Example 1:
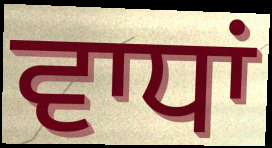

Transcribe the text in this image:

ਵਾਧਾਂ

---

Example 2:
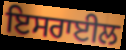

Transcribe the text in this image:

ਇਸਰਾਈਲ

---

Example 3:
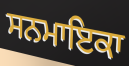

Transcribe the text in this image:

ਸਨਮਾਇਕਾ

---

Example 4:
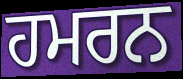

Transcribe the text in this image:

ਹਮਰਨ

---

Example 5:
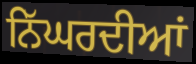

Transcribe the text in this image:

ਨਿੱਘਰਦੀਆਂ